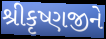
શ્રીકૃષ્ણજીને